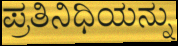
ಪ್ರತಿನಿಧಿಯನ್ನು